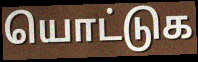
யொட்டுக